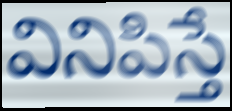
వినిపిస్తే